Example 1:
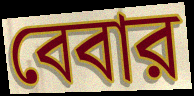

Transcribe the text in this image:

বেবার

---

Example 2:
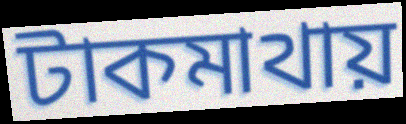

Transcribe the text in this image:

টাকমাথায়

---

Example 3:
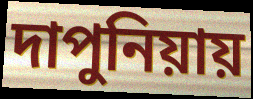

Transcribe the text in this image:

দাপুনিয়ায়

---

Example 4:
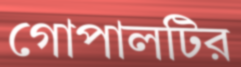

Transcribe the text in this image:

গোপালটির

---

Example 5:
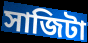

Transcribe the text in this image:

সাজিটা